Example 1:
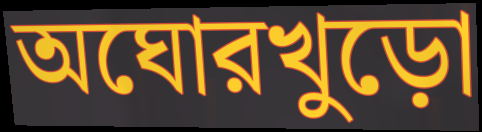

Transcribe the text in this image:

অঘোরখুড়ো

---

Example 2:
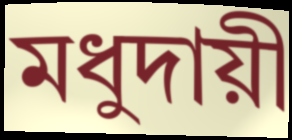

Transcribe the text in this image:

মধুদায়ী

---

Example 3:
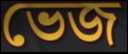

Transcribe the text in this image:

ভেজ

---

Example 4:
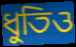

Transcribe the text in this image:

ধুতিও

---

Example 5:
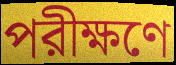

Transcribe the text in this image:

পরীক্ষণে